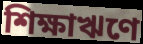
শিক্ষাঋণে